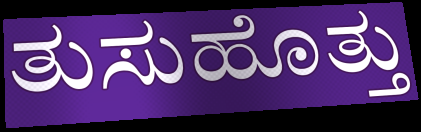
ತುಸುಹೊತ್ತು